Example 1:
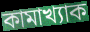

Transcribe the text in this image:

কামাখ্যাক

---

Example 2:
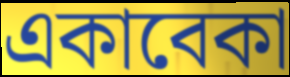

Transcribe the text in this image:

একাবেকা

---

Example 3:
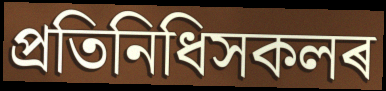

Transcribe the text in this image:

প্ৰতিনিধিসকলৰ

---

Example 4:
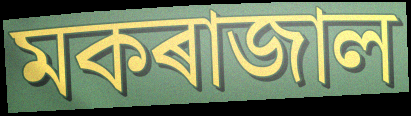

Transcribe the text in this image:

মকৰাজাল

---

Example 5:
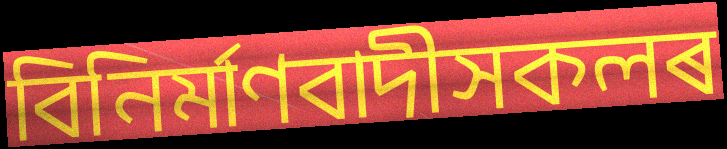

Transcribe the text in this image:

বিনিৰ্মাণবাদীসকলৰ